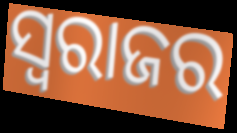
ସ୍ବରାଜର